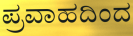
ಪ್ರವಾಹದಿಂದ